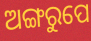
ଅଙ୍ଗରୁପେ